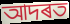
আদৰত